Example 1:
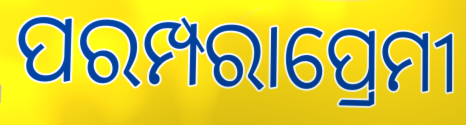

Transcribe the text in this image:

ପରମ୍ପରାପ୍ରେମୀ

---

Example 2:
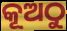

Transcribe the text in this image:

କୂଅଠୁ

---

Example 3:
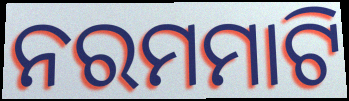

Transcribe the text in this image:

ନରମମାଟି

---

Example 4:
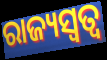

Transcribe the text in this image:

ରାଜ୍ୟସ୍ଵତ୍ଵ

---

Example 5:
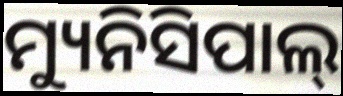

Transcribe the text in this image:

ମ୍ୟୁନିସିପାଲ୍